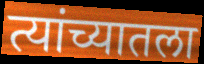
त्यांच्यातला